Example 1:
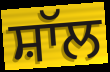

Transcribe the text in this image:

ਸ਼ਾੱਲ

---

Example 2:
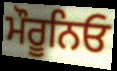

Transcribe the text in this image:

ਮੌਰੂਨਿਓ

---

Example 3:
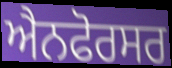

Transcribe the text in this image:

ਐਨਫੋਰਸਰ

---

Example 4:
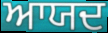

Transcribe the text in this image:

ਆਯਦ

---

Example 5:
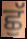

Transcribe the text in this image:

ਛੁੱ